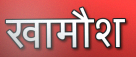
खामौश